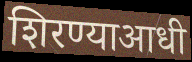
शिरण्याआधी